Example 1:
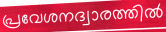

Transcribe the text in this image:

പ്രവേശനദ്വാരത്തിൽ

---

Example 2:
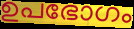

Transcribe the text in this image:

ഉപഭോഗം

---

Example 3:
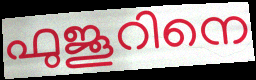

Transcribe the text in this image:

ഫുജൂറിനെ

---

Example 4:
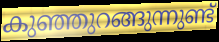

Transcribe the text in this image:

കുഞ്ഞുറങ്ങുന്നുണ്ട്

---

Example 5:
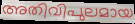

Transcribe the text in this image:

അതിവിപുലമായ